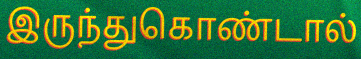
இருந்துகொண்டால்